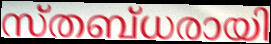
സ്തബ്ധരായി